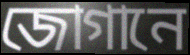
জোগানে